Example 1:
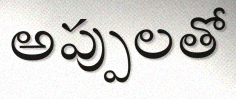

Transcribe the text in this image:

అప్పులతో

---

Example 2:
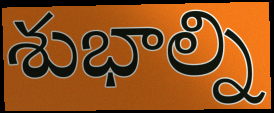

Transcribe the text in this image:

శుభాల్ని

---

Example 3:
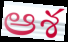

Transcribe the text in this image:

ఆశ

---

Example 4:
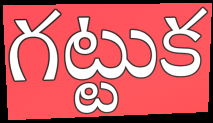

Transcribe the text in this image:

గట్టుక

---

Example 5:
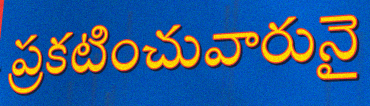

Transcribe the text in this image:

ప్రకటించువారునై